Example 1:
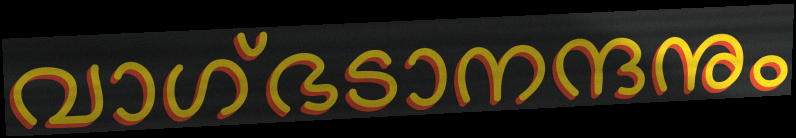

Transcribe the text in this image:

വാഗ്ഭടാനന്ദനും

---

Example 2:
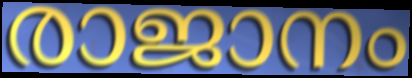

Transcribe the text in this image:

രാജാനം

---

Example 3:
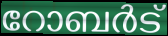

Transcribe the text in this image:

റോബർട്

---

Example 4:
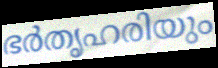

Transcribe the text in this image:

ഭർതൃഹരിയും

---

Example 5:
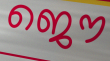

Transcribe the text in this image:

ജൌ